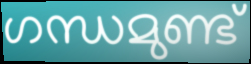
ഗന്ധമുണ്ട്